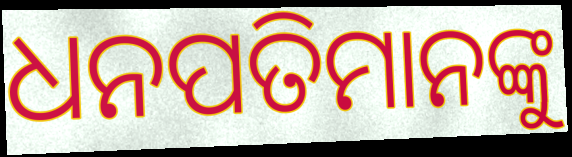
ଧନପତିମାନଙ୍କୁ